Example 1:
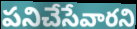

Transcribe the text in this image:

పనిచేసేవారని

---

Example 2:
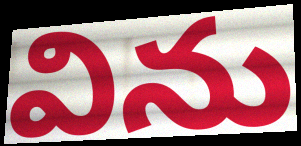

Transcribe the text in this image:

విను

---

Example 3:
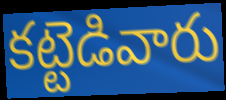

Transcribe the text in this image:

కట్టెడివారు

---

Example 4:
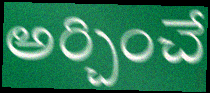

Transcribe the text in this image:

అర్చించే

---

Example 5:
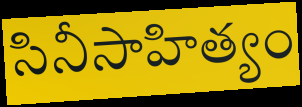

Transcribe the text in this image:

సినీసాహిత్యం